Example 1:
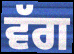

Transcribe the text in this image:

ਵੱਗ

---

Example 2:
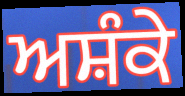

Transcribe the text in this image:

ਅਸ਼ੰਕੇ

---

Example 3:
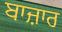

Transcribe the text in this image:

ਬਾਜ਼ਾਰ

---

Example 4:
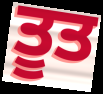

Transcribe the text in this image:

ਤੂਤ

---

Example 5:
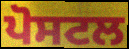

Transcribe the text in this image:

ਪੋਸਟਲ